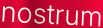
nostrum